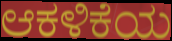
ಆಕಳಿಕೆಯ